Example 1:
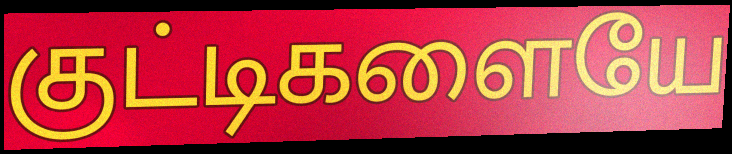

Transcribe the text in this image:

குட்டிகளையே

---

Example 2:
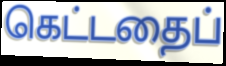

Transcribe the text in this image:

கெட்டதைப்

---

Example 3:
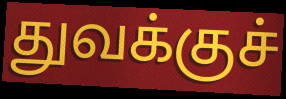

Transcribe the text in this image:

துவக்குச்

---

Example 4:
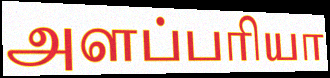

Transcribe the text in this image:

அளப்பரியா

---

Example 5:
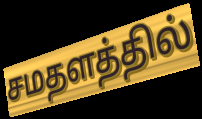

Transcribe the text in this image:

சமதளத்தில்